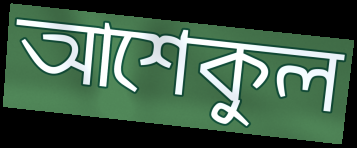
আশেকুল